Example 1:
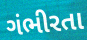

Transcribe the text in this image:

ગંભીરતા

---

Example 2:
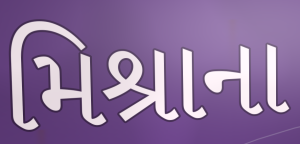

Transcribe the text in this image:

મિશ્રાના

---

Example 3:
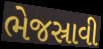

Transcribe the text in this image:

ભેજસ્રાવી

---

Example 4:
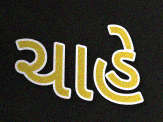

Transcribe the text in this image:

ચાહે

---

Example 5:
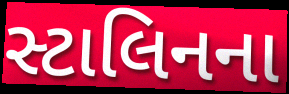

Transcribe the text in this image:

સ્ટાલિનના